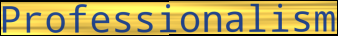
Professionalism